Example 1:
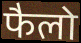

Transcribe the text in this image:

फैलो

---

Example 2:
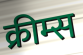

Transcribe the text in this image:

क्रीम्‍स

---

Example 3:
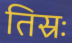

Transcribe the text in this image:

तिस्रः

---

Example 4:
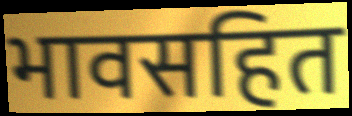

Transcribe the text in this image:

भावसहित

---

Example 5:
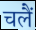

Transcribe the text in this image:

चलैं